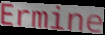
Ermine